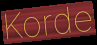
Korde